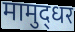
मामुद्धर